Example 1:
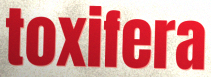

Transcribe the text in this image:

toxifera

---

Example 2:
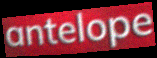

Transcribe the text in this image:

antelope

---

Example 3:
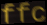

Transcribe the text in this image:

ffc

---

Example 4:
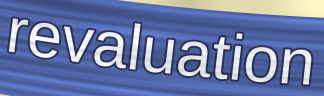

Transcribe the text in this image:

revaluation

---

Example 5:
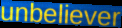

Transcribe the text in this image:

unbeliever